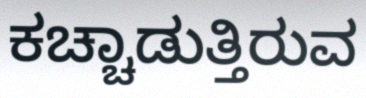
ಕಚ್ಚಾಡುತ್ತಿರುವ